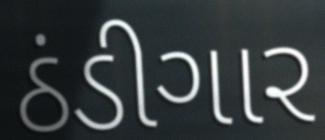
ઠંડીગાર